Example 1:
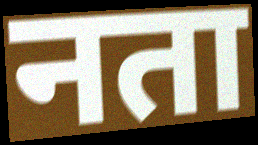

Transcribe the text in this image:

नता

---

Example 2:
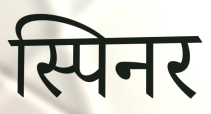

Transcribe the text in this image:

स्पिनर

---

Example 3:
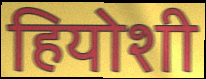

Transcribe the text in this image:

हियोशी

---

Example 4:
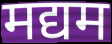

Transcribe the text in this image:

मद्यम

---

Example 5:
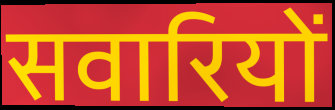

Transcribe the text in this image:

सवारियों